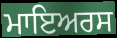
ਮਾਇਅਰਸ